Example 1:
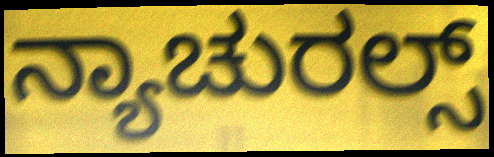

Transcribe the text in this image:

ನ್ಯಾಚುರಲ್ಸ್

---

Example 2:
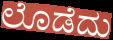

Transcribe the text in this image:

ಲೊಡೆದು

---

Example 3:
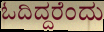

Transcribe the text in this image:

ಓದಿದ್ದರೆಂದು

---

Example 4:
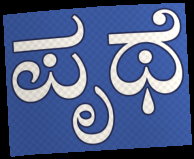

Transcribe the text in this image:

ಪೃಥೆ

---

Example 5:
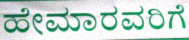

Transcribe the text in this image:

ಹೇಮಾರವರಿಗೆ